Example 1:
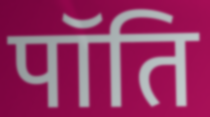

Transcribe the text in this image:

पॉति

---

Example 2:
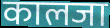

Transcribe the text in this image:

कालजा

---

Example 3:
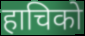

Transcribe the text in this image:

हाचिको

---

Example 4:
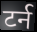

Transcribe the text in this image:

टर्न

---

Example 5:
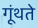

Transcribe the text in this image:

गूंथते